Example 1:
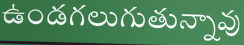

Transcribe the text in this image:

ఉండగలుగుతున్నావు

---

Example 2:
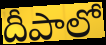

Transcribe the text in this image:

దీపాలో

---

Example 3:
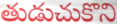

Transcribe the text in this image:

తుడుచుకొని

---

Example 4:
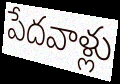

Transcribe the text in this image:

పేదవాళ్లు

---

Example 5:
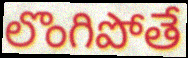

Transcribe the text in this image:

లొంగిపోతే